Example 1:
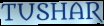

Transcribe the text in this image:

TUSHAR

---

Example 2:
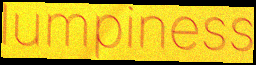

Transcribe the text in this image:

lumpiness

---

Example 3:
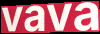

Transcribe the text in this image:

vava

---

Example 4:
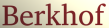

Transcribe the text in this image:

Berkhof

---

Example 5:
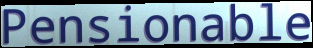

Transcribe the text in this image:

Pensionable